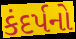
કંદર્પનો